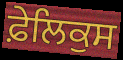
ਫ਼ੇਲਿਕੁਸ